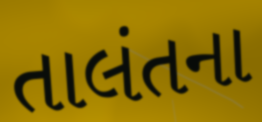
તાલંતના